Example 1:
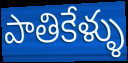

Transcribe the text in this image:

పాతికేళ్ళు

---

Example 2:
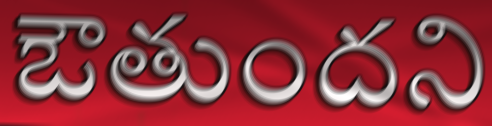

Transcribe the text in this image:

ఔతుందని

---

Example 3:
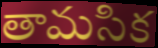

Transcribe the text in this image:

తామసిక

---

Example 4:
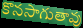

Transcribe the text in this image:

కొనసాగుతావు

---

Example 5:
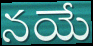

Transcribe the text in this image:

నయే